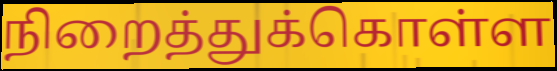
நிறைத்துக்கொள்ள